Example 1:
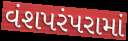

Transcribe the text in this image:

વંશપરંપરામાં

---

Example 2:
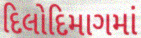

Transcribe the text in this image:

દિલોદિમાગમાં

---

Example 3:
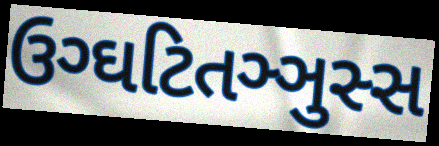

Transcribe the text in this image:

ઉગ્ઘટિતઞ્ઞુસ્સ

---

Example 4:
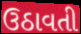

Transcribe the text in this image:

ઉઠાવતી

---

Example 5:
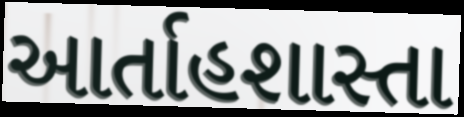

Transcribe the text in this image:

આર્તાહશાસ્તા